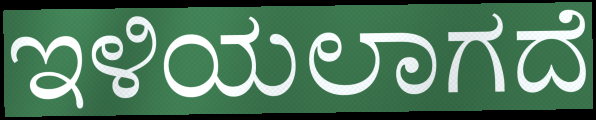
ಇಳಿಯಲಾಗದೆ